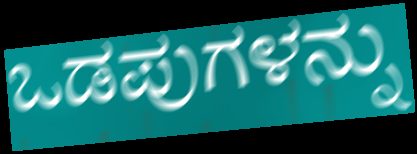
ಒಡಪುಗಳನ್ನು